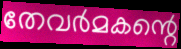
തേവർമകന്റെ